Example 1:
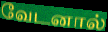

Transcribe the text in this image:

வேடனால்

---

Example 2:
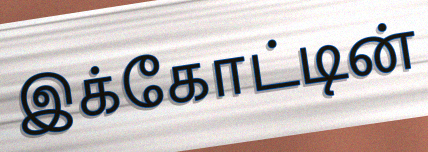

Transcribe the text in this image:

இக்கோட்டின்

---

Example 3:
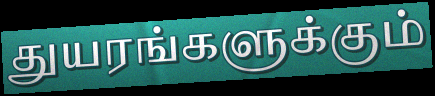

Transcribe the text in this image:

துயரங்களுக்கும்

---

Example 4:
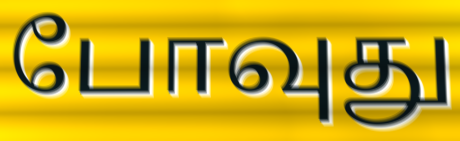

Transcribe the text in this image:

போவுது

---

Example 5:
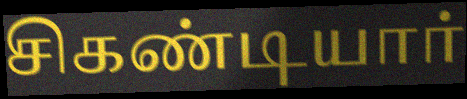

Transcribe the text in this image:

சிகண்டியார்